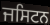
ਜਸਿਟਨ